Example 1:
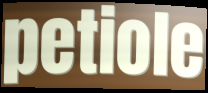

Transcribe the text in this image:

petiole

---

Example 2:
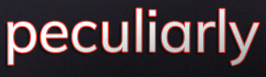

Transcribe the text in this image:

peculiarly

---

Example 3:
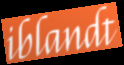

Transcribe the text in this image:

iblandt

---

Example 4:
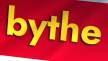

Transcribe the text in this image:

bythe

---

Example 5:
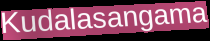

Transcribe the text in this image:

Kudalasangama